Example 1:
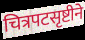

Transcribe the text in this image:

चित्रपटसृष्टीने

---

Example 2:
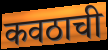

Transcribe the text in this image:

कवठाची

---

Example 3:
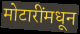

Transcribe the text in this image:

मोटारींमधून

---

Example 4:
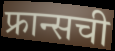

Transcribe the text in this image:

फ्रान्सची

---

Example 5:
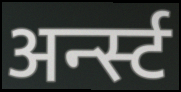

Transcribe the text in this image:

अर्न्स्ट